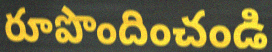
రూపొందించండి